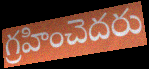
గ్రహించెదరు